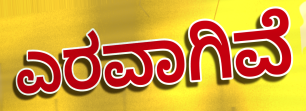
ಎರವಾಗಿವೆ